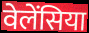
वेलेंसिया